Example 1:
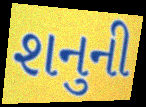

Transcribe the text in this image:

શનુની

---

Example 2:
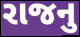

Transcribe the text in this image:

રાજનુ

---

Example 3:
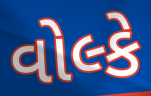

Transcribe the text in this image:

વોલ્કે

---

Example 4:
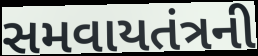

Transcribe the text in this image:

સમવાયતંત્રની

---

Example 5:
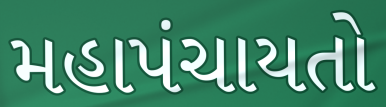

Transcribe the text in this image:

મહાપંચાયતો